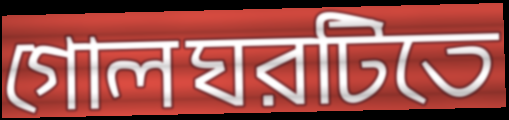
গোলঘরটিতে